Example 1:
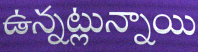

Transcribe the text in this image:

ఉన్నట్లున్నాయి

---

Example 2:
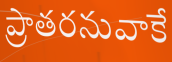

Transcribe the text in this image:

ప్రాతరనువాకే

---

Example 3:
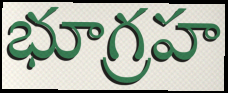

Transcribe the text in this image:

భూగ్రహ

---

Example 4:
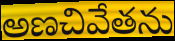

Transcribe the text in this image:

అణచివేతను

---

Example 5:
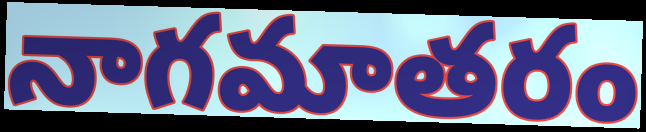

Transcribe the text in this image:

నాగమాతరం